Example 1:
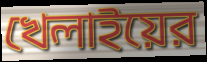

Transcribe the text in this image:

খেলাইয়ের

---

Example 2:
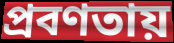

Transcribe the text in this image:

প্রবণতায়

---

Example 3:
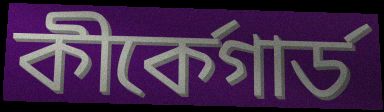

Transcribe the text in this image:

কীর্কেগার্ড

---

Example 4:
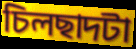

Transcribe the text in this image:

চিলছাদটা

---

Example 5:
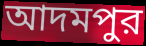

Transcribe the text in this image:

আদমপুর